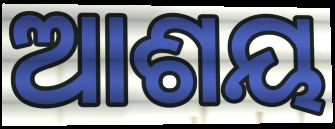
ଆଶୟ